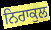
ਨਿਰਾਕੁਲ